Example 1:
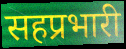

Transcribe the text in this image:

सहप्रभारी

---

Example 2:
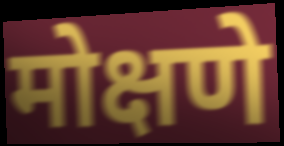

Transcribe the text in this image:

मोक्षणे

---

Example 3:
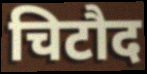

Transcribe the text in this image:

चिटौद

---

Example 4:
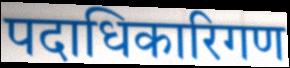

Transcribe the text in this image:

पदाधिकारिगण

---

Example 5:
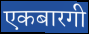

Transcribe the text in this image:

एकबारगी